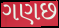
ગણછ